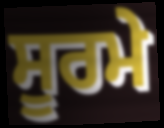
ਸੂਰਮੇ